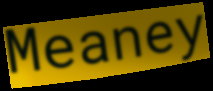
Meaney